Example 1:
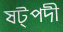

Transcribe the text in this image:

ষট্‌পদী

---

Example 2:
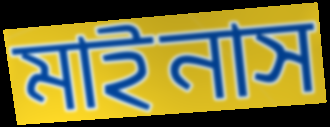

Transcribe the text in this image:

মাইনাস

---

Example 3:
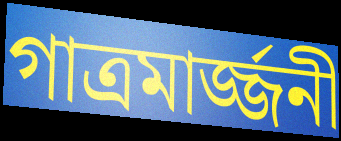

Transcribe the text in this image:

গাত্রমার্জ্জনী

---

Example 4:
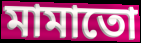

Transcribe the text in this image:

মামাতো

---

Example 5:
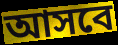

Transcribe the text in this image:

আসবে